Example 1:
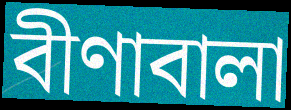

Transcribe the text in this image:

বীণাবালা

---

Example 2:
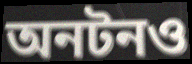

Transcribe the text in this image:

অনটনও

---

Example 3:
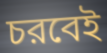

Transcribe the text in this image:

চরবেই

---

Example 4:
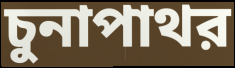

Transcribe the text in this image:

চুনাপাথর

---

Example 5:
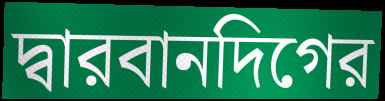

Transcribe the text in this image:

দ্বারবানদিগের